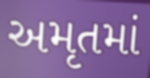
અમૃતમાં